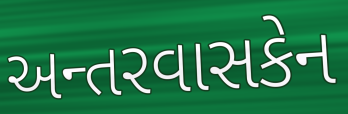
અન્તરવાસકેન